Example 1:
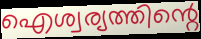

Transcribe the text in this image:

ഐശ്വര്യത്തിന്റെ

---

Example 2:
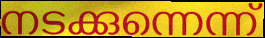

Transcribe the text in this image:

നടക്കുന്നെന്ന്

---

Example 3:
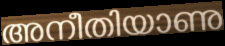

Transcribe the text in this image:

അനീതിയാണു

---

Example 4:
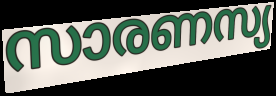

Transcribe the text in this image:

സാരണസ്യ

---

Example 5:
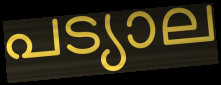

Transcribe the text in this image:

പട്യാല